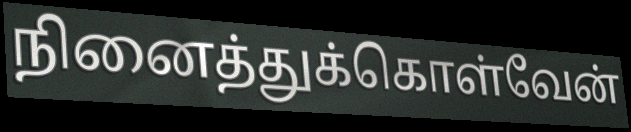
நினைத்துக்கொள்வேன்